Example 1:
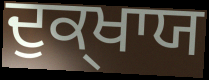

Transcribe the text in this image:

ਦੁਕ੍ਖਾਯ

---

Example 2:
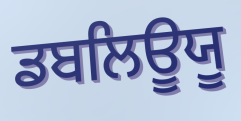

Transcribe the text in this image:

ਡਬਲਿਊਯੂ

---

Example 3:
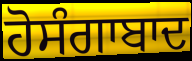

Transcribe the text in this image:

ਹੋਸੰਗਾਬਾਦ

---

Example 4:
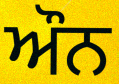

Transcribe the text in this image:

ਔਨ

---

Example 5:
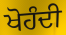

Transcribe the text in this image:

ਖੋਹੰਦੀ